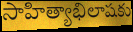
సాహిత్యాభిలాషకు